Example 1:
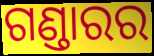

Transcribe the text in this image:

ଗଣ୍ଡାରର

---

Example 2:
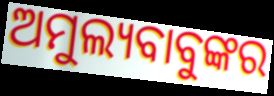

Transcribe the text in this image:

ଅମୁଲ୍ୟବାବୁଙ୍କର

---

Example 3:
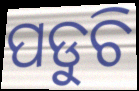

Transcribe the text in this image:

ପଡୁଚି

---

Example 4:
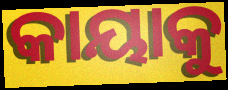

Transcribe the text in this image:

କାୟାକୁ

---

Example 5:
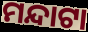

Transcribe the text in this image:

ମନ୍ଦାଟା